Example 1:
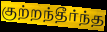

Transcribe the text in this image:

குற்றந்தீர்ந்த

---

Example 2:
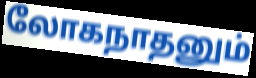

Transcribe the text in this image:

லோகநாதனும்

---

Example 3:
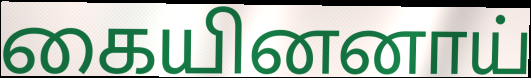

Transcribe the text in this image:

கையினனாய்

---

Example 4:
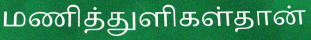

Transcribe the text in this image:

மணித்துளிகள்தான்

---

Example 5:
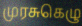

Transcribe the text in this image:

முரசுகெழு